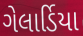
ગેલાર્ડિયા